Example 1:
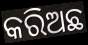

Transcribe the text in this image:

କରିଅଛ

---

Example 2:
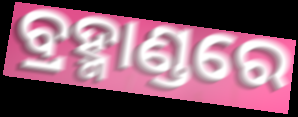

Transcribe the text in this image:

ବ୍ରହ୍ମାଣ୍ଡରେ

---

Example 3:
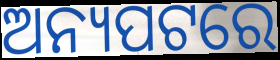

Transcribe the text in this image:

ଅନ୍ୟପଟରେ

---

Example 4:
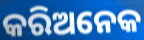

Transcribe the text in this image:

କରିଅନେକ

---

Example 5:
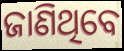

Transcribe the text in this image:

ଜାଣିଥିବେ